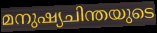
മനുഷ്യചിന്തയുടെ